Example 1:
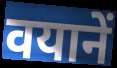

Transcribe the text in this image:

वयानें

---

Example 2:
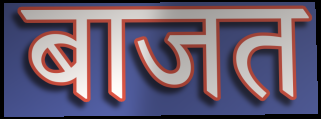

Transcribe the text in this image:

बाजत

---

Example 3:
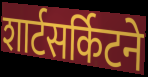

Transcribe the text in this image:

शार्टसर्किटने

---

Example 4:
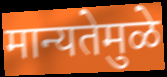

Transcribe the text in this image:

मान्यतेमुळे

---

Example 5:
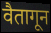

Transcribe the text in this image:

वैतागून